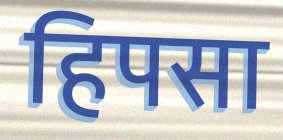
हिपसा